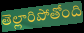
తెల్లారిపోతోంది